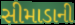
સીમાડાની